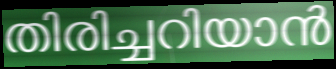
തിരിച്ചറിയാൻ